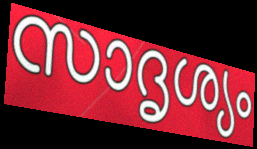
സാദൃശ്യം